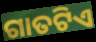
ଗାତଟିଏ